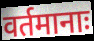
वर्तमानाः